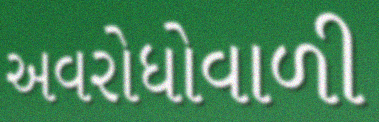
અવરોધોવાળી